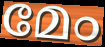
മേം